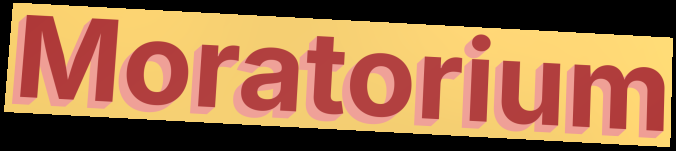
Moratorium